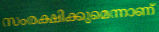
സംരക്ഷിക്കുമെന്നാണ്